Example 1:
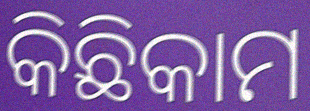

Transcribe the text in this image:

କିଛିକାମ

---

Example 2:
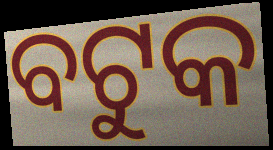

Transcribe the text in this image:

ବଟୁକ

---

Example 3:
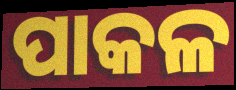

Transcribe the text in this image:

ପାକଳ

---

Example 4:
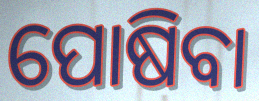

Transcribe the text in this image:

ପୋଷିବା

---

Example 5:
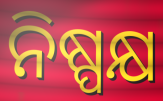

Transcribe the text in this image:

ନିଷ୍ପକ୍ଷ